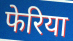
फेरिया